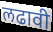
लढावी